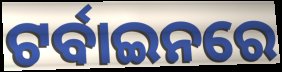
ଟର୍ବାଇନରେ